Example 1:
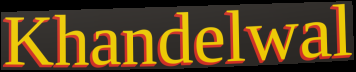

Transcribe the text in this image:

Khandelwal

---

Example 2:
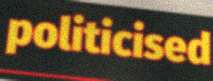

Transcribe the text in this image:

politicised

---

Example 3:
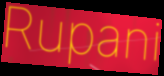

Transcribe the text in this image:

Rupani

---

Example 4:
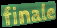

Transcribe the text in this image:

finale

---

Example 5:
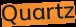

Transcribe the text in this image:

Quartz